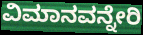
ವಿಮಾನವನ್ನೇರಿ